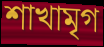
শাখামৃগ